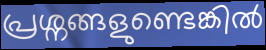
പ്രശ്നങ്ങളുണ്ടെങ്കിൽ